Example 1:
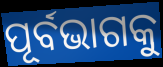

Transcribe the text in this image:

ପୂର୍ବଭାଗକୁ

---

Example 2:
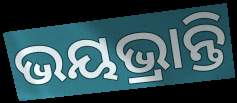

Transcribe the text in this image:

ଭୟଭ୍ରାନ୍ତି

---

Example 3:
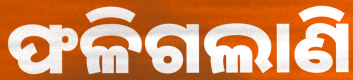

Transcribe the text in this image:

ଫଳିଗଲାଣି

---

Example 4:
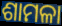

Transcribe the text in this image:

ଶାମଳା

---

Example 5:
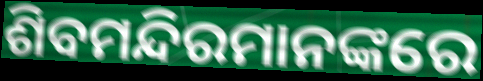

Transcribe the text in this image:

ଶିବମନ୍ଦିରମାନଙ୍କରେ